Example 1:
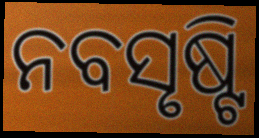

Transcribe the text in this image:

ନବସୃଷ୍ଟି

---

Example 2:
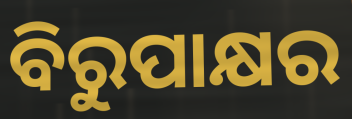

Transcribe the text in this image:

ବିରୁପାକ୍ଷର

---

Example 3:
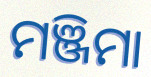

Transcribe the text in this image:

ମଞ୍ଜିମା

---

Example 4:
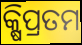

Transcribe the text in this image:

କ୍ଷିପ୍ରତମ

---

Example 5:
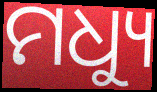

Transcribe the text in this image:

ମଧ୍ୟୁ